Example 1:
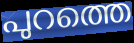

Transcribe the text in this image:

പുറത്തെ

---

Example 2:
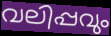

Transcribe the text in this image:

വലിപ്പവും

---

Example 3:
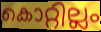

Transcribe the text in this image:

കൊറ്റില്ലം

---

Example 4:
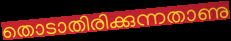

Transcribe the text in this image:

തൊടാതിരിക്കുന്നതാണു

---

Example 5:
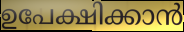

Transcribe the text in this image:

ഉപേക്ഷിക്കാൻ